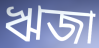
ঋজা